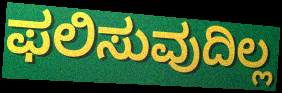
ಫಲಿಸುವುದಿಲ್ಲ